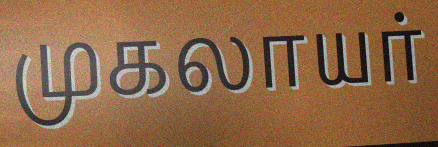
முகலாயர்